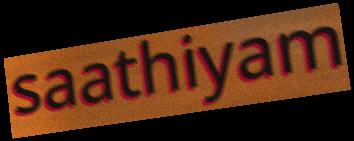
saathiyam